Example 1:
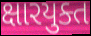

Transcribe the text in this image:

ક્ષારયુક્ત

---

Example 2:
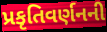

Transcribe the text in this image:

પ્રકૃતિવર્ણનની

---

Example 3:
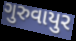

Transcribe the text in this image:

ગુરુવાયુર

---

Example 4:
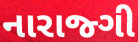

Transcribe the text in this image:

નારાજ્ગી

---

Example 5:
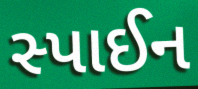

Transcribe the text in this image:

સ્પાઈન